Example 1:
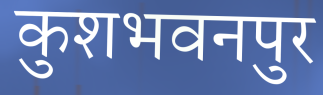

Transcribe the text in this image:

कुशभवनपुर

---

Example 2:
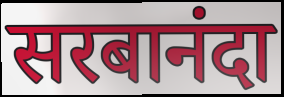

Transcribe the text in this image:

सरबानंदा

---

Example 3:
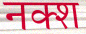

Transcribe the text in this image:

नक्श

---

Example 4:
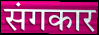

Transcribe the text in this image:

संगकार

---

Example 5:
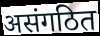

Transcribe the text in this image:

असंगठित